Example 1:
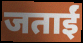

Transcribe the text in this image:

जताईं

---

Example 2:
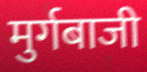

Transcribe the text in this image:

मुर्गबाजी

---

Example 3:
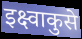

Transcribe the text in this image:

इक्ष्वाकुसे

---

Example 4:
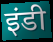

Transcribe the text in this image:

इंडी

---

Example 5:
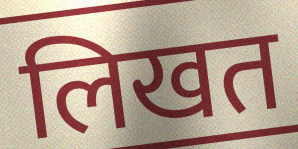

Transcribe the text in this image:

लिखत